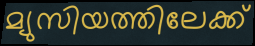
മ്യുസിയത്തിലേക്ക്